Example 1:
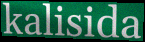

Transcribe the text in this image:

kalisida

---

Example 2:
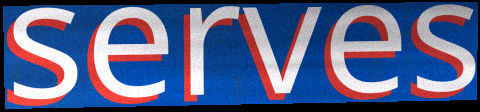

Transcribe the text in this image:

serves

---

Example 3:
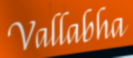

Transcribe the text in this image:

Vallabha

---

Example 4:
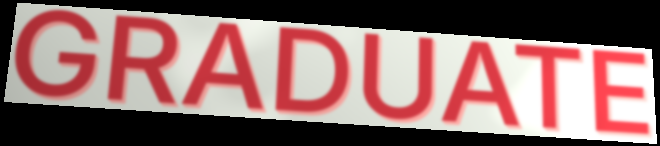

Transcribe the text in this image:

GRADUATE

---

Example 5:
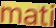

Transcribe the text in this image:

mati